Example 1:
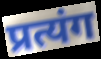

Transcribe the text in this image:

प्रत्यंग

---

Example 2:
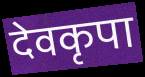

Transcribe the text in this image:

देवकृपा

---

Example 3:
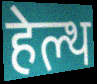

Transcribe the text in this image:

हेल्थ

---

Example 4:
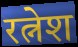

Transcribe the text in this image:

रत्नेश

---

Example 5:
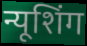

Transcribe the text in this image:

न्यूशिंग